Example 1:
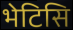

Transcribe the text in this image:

भेटिसि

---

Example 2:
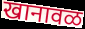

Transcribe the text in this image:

खानावळ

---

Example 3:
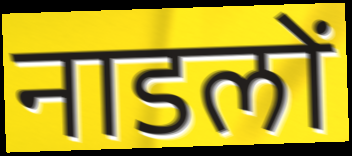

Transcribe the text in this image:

नाडलों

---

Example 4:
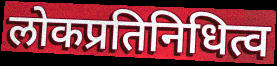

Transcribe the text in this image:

लोकप्रतिनिधित्व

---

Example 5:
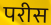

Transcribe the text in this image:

परीस